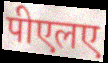
पीएलए